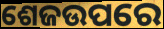
ଶେଜଉପରେ